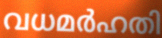
വധമർഹതി